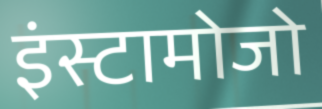
इंस्टामोजो